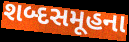
શબ્દસમૂહના